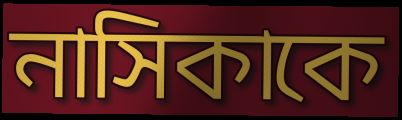
নাসিকাকে